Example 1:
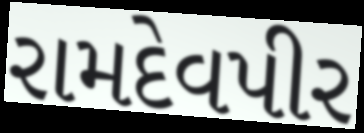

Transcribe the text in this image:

રામદેવપીર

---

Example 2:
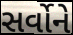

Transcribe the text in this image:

સર્વોને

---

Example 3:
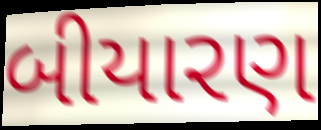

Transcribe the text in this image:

બીયારણ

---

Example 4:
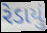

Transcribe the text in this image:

રેડાયું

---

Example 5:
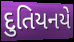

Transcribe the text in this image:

દુતિયનયે